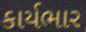
કાર્યભાર